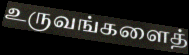
உருவங்களைத்